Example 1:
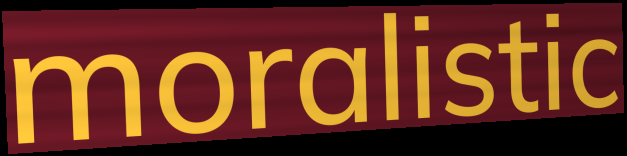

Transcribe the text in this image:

moralistic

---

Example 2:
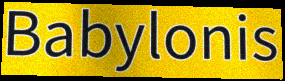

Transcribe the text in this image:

Babylonis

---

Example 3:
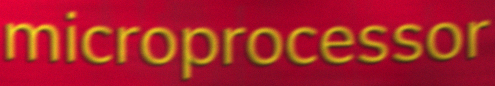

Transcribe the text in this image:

microprocessor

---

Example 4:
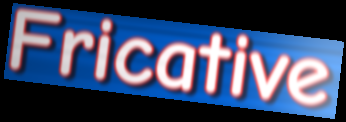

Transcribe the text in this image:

Fricative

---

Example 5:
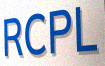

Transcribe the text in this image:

RCPL